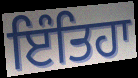
ਇੰਤਿਹਾ